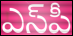
ఎస్‌పీ